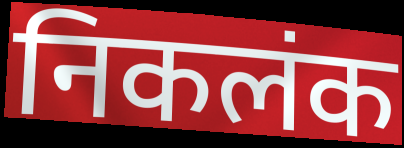
निकलंक